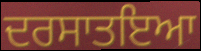
ਦਰਸਾਤਇਆ